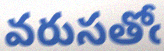
వరుసతోఁ